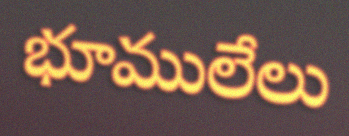
భూములేలు